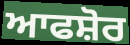
ਆਫਸ਼ੋਰ